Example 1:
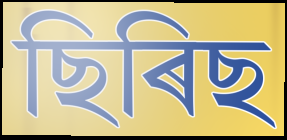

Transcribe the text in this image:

ছিৰিছ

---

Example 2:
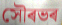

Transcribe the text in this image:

সৌৰভৰ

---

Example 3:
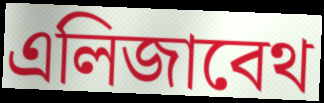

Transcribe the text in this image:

এলিজাবেথ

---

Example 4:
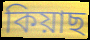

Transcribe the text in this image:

কিয়াছ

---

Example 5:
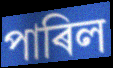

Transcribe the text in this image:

পাৰিল